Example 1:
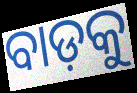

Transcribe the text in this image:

ବାଡ଼କୁ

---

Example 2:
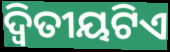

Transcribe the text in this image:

ଦ୍ୱିତୀୟଟିଏ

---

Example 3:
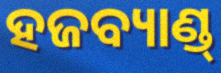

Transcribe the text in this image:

ହଜବ୍ୟାଣ୍ଡ୍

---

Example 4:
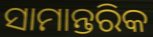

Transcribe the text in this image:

ସାମାନ୍ତରିକ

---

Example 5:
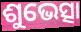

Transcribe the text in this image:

ଶୁଭେତ୍ସା